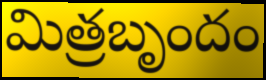
మిత్రబృందం